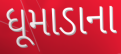
ધૂમાડાના